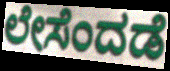
ಲೇಸೆಂದಡೆ